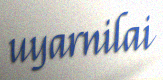
uyarnilai